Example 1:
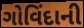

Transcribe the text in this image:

ગોવિંદાની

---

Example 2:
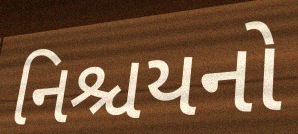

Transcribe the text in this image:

નિશ્ચયનો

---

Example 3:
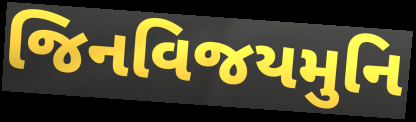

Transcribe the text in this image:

જિનવિજયમુનિ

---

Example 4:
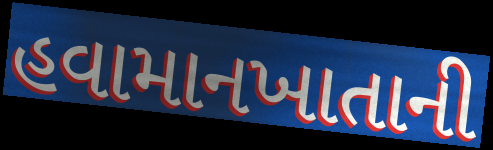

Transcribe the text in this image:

હવામાનખાતાની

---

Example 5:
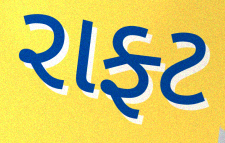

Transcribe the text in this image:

રાફ્ટ